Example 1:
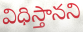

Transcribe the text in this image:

విధిస్తానని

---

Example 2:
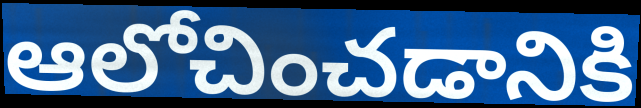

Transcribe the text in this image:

ఆలోచించడానికి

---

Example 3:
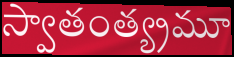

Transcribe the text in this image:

స్వాతంత్య్రమూ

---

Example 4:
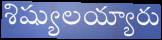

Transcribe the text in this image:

శిష్యులయ్యారు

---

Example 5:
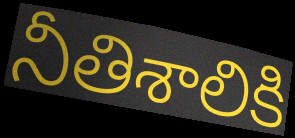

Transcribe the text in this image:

నీతిశాలికి